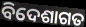
ବିଦେଶାଗତ